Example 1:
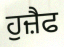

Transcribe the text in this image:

ਹੁਜ਼ੈਫ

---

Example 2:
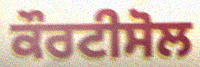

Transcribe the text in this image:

ਕੌਰਟੀਸੋਲ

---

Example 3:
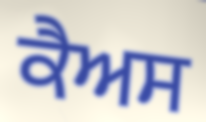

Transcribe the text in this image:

ਕੈਅਸ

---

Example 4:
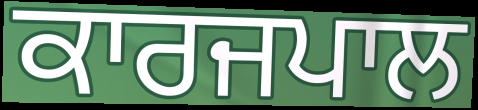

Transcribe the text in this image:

ਕਾਰਜਪਾਲ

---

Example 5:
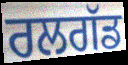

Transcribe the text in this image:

ਰਲਗੱਡ